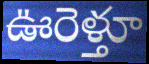
ఊరెళ్తూ